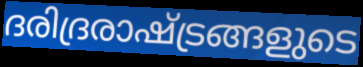
ദരിദ്രരാഷ്ട്രങ്ങളുടെ